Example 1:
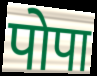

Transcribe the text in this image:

पोपा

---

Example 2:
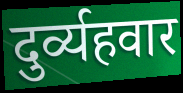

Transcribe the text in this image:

दुर्व्यहवार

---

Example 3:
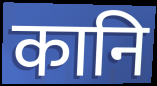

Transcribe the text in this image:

कानि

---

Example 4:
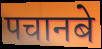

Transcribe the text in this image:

पचानबे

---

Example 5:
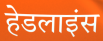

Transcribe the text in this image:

हेडलाइंस